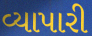
વ્યાપારી